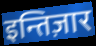
इन्तिज़ार